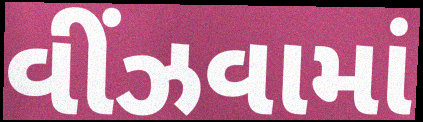
વીંઝવામાં